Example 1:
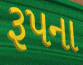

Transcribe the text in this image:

રૂપના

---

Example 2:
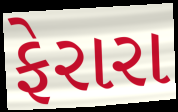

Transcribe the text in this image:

ફેરારા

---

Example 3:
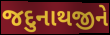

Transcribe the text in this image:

જદુનાથજીને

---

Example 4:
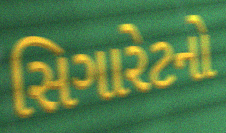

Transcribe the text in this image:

સિગારેટનો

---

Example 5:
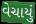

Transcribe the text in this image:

વેચાયું